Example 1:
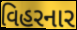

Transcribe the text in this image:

વિહરનાર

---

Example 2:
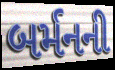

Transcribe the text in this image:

બર્મનની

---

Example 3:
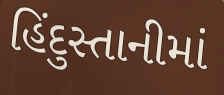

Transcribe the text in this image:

હિંદુસ્તાનીમાં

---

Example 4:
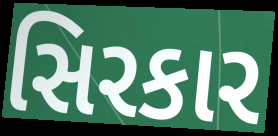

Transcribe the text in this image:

સિરકાર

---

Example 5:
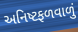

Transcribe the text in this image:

અનિષ્ટફળવાળું